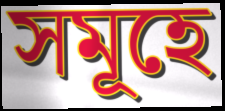
সমূহে